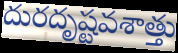
దురదృష్టవశాత్తు